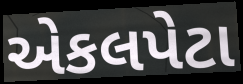
એકલપેટા